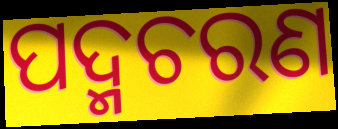
ପଦ୍ମଚରଣ